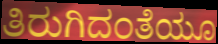
ತಿರುಗಿದಂತೆಯೂ